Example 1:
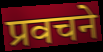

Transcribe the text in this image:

प्रवचने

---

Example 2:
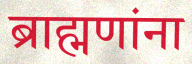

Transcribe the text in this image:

ब्राह्मणांना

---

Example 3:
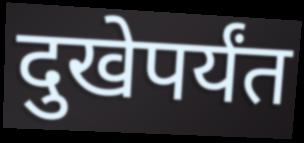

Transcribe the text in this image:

दुखेपर्यंत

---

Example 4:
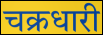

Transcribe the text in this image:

चक्रधारी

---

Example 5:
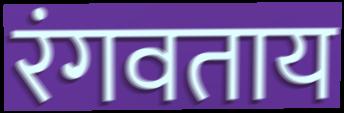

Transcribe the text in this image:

रंगवताय